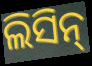
ଲିସିନ୍